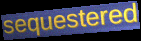
sequestered